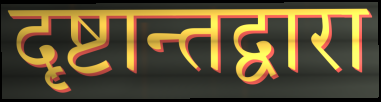
दृष्टान्तद्वारा